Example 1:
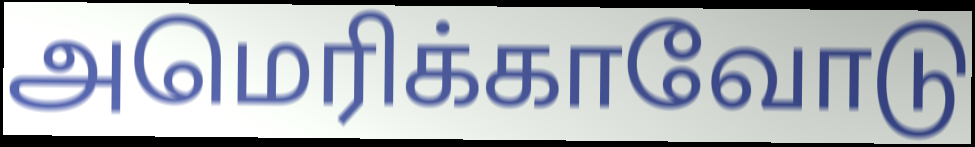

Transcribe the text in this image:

அமெரிக்காவோடு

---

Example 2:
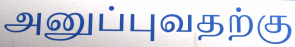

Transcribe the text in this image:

அனுப்புவதற்கு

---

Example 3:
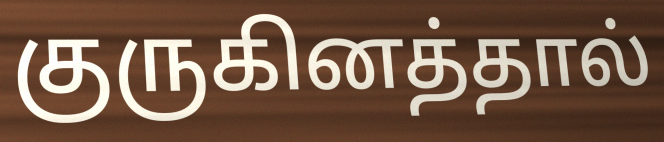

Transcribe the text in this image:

குருகினத்தால்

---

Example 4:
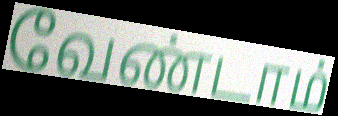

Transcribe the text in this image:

வேண்டாம்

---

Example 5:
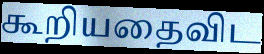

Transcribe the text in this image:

கூறியதைவிட